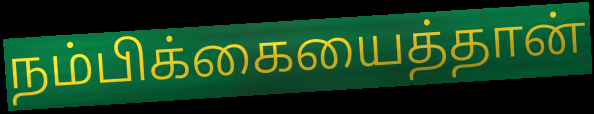
நம்பிக்கையைத்தான்